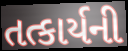
તત્કાર્યની